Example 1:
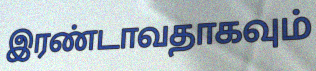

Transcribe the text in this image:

இரண்டாவதாகவும்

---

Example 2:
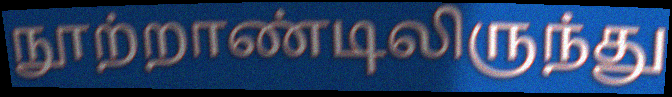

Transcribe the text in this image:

நூற்றாண்டிலிருந்து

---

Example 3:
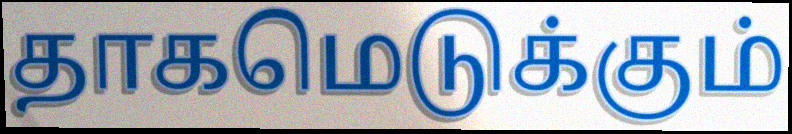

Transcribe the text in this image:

தாகமெடுக்கும்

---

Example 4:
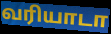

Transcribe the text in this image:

வரியாடா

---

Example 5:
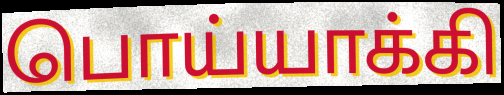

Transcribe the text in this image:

பொய்யாக்கி